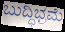
ಬುದ್ಧಿಭ್ರಮೆ